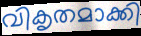
വികൃതമാക്കി